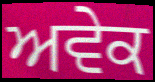
ਅਵੇਕ